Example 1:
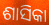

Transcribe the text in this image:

ଶାସିକା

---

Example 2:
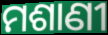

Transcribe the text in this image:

ମଶାଣୀ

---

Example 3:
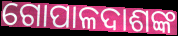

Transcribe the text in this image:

ଗୋପାଳଦାଶଙ୍କ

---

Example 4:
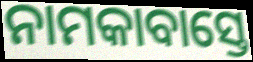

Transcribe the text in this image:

ନାମକାବାସ୍ତେ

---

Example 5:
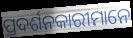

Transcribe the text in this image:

ପ୍ରଦର୍ଶନକାରୀମାନେ